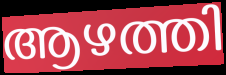
ആഴത്തി